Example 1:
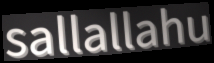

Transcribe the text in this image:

sallallahu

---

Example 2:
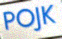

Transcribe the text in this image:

POJK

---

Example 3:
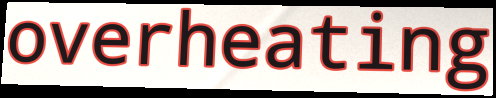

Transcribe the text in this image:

overheating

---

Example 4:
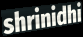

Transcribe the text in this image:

shrinidhi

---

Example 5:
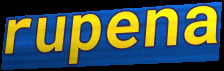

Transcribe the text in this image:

rupena